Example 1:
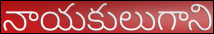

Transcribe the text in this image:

నాయకులుగాని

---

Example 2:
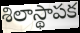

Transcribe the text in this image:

శిలాస్థాపక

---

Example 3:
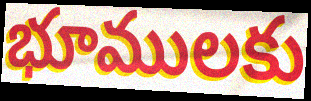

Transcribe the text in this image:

భూములకు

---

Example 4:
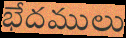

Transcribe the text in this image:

భేదములు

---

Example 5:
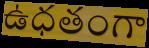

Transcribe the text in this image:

ఉధతంగా